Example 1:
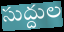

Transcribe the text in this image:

సుద్దుల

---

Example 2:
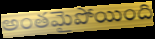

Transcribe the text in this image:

అంతమైపోయింది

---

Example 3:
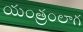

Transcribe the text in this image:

యంత్రంలాగ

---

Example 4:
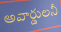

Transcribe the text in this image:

అవార్డులనీ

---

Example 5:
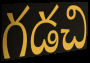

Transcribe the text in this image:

గడచి